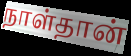
நாள்தான்